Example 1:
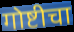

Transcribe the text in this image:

गोष्टीचा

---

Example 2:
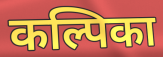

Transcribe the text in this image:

कल्पिका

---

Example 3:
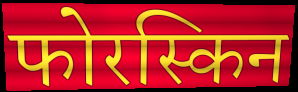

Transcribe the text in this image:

फोरस्किन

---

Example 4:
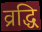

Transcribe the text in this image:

व्रद्धि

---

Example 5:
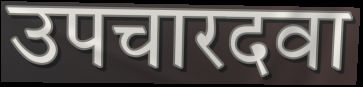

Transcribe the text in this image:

उपचारदवा